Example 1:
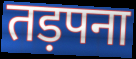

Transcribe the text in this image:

तड़पना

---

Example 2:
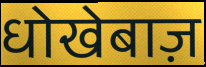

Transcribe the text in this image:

धोखेबाज़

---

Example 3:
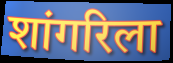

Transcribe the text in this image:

शांगरिला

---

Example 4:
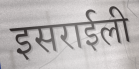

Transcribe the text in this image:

इसराईली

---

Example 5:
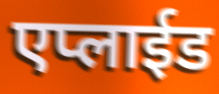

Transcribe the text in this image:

एप्लाईड